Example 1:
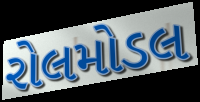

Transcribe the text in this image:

રોલમોડલ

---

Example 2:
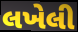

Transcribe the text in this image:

લખેલી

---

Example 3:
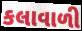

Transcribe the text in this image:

કલાવાળી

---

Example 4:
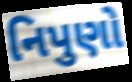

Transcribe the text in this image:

નિપુણો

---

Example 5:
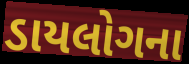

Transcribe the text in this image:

ડાયલોગના